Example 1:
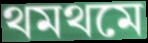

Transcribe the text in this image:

থমথমে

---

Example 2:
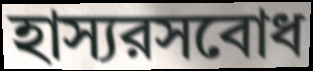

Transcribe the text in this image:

হাস্যরসবোধ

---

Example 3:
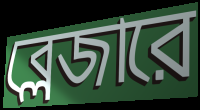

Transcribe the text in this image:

ব্লেজারে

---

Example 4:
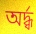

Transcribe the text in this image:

অর্দ্ধ্ব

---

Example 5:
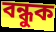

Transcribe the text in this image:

বন্ধুক